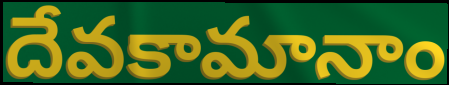
దేవకామానాం